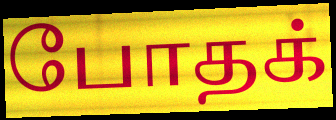
போதக்